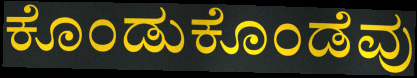
ಕೊಂಡುಕೊಂಡೆವು